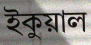
ইকুয়াল